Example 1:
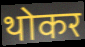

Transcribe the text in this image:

थोकर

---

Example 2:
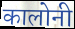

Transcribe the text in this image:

कालोनी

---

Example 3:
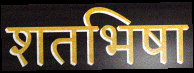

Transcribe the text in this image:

शतभिषा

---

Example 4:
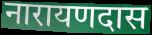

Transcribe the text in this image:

नारायणदास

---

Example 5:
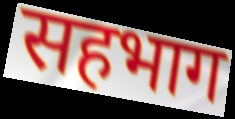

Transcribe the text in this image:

सहभाग